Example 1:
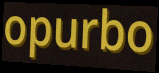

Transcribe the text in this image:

opurbo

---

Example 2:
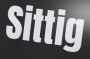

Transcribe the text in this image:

Sittig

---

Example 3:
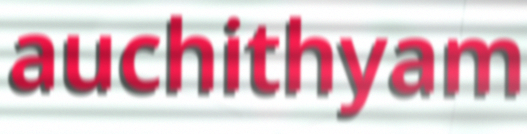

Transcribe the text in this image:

auchithyam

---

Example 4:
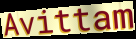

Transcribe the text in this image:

Avittam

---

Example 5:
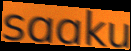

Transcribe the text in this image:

saaku